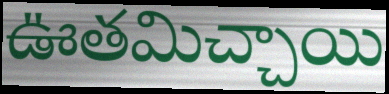
ఊతమిచ్చాయి